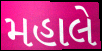
મહાલે